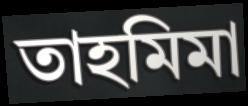
তাহমিমা